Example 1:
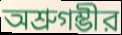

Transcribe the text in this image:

অশ্রুগম্ভীর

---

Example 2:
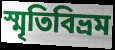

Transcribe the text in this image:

স্মৃতিবিভ্রম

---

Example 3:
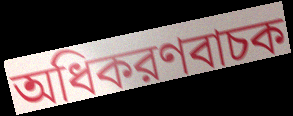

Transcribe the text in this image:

অধিকরণবাচক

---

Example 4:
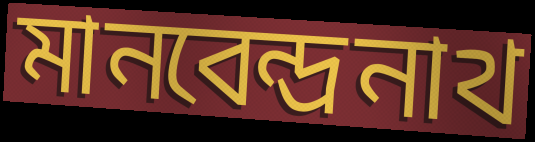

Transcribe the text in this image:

মানবেন্দ্রনাথ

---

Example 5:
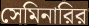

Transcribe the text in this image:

সেমিনারির